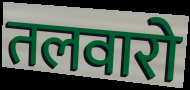
तलवारो